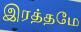
இரத்தமே